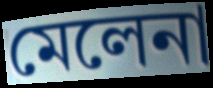
মেলেনা